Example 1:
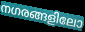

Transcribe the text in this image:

നഗരങ്ങളിലോ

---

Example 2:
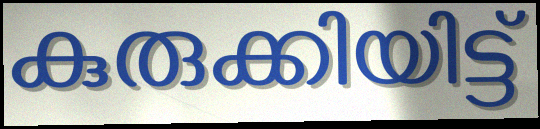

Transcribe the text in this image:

കുരുക്കിയിട്ട്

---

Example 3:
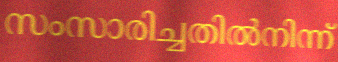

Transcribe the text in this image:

സംസാരിച്ചതിൽനിന്ന്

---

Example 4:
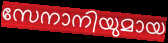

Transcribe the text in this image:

സേനാനിയുമായ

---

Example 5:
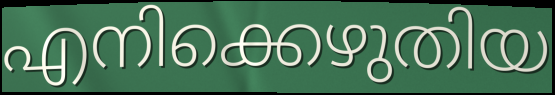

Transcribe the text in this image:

എനിക്കെഴുതിയ